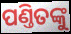
ପଣ୍ତିତଙ୍କୁ